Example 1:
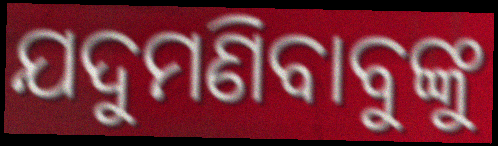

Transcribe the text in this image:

ଯଦୁମଣିବାବୁଙ୍କୁ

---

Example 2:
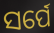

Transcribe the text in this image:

ସର୍ପେ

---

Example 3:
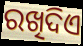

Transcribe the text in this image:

ରଖିଦିଏ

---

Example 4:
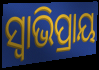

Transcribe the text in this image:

ସ୍ଵାଭିପ୍ରାୟ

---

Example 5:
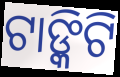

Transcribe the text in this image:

ଟାଙ୍କିଟି